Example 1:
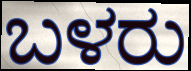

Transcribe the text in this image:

ಬಳರು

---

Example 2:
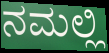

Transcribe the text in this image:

ನಮಲ್ಲಿ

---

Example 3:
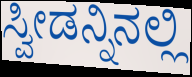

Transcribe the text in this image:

ಸ್ವೀಡನ್ನಿನಲ್ಲಿ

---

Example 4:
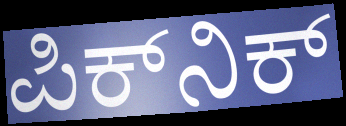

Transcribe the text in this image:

ಪಿಕ್‌ನಿಕ್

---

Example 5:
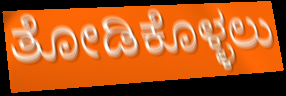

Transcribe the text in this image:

ತೋಡಿಕೊಳ್ಳಲು